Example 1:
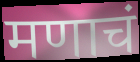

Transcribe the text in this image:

मणाचं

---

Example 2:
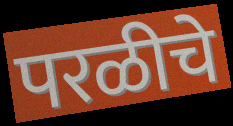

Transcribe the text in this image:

परळीचे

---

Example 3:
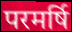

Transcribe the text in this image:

परमर्षि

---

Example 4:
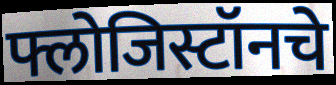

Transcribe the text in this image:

फ्लोजिस्टॉनचे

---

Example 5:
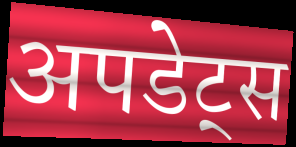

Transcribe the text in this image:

अपडेट्स